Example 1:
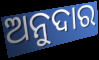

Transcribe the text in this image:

ଅନୁଦାର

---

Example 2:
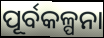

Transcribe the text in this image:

ପୂର୍ବକଳ୍ପନା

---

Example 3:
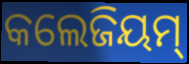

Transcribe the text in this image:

କଲେଜିୟମ୍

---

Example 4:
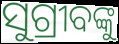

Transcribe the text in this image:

ସୁଗ୍ରୀବଙ୍କୁ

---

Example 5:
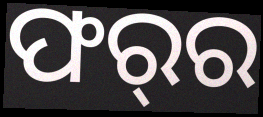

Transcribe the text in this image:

ଫର୍‌ର